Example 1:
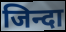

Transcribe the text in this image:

जिन्दा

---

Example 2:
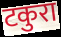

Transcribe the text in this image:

टकुरा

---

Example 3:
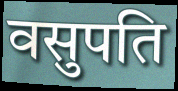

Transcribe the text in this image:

वसुपति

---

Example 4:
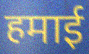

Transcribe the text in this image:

हमाई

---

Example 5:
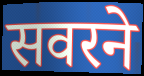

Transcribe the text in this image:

सवरने